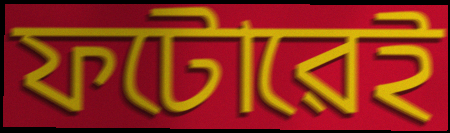
ফটোৱেই